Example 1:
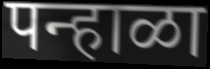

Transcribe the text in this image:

पन्हाळा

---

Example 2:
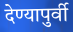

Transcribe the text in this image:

देण्यापुर्वी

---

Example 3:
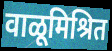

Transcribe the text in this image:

वाळूमिश्रित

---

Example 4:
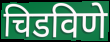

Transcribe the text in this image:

चिडविणे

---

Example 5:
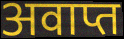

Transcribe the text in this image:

अवाप्त